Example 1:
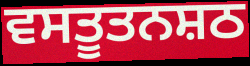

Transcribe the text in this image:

ਵਸਤੂਤਨਸ਼ਠ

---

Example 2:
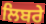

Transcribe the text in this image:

ਲਿਬਰੇ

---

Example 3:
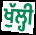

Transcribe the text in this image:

ਖੁੱਲ੍ਹੀ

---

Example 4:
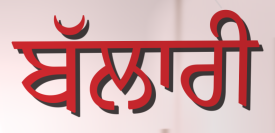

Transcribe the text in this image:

ਬੱਲਾਰੀ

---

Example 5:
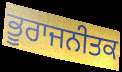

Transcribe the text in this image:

ਭੂਰਾਜਨੀਤਕ